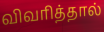
விவரித்தால்